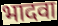
भादवा